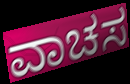
ವಾಚಸ